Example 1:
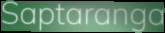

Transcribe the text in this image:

Saptaranga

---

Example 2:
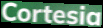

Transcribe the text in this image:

Cortesia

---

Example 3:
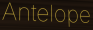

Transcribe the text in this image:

Antelope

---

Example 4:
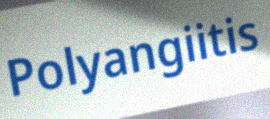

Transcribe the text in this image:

Polyangiitis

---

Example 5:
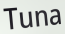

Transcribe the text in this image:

Tuna